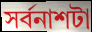
সর্বনাশটা